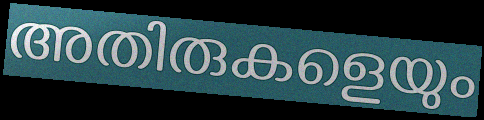
അതിരുകളെയും